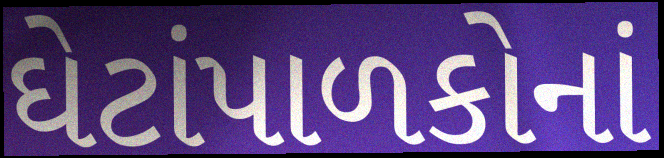
ઘેટાંપાળકોનાં